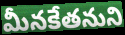
మీనకేతనుని